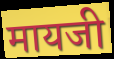
मायजी